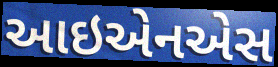
આઇએનએસ